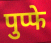
पुप्फे